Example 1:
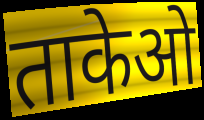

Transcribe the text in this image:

ताकेओ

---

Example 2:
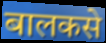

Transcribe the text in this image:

बालकसे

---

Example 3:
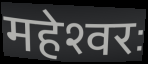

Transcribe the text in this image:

महेश्वरः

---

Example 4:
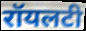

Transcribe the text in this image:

रॉयलटी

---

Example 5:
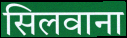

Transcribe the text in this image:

सिलवाना